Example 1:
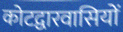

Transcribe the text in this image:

कोटद्वारवासियों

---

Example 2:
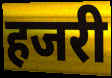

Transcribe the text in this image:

हजरी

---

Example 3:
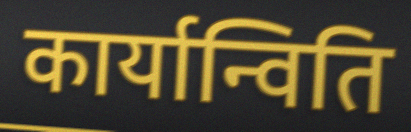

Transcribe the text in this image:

कार्यान्विति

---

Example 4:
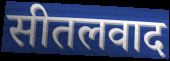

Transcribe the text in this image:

सीतलवाद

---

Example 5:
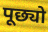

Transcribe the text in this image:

पूछ्यो